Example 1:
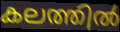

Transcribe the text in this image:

കലത്തിൽ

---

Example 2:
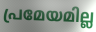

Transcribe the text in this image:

പ്രമേയമില്ല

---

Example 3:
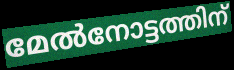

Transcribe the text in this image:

മേൽനോട്ടത്തിന്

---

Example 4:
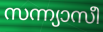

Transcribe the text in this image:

സന്ന്യാസീ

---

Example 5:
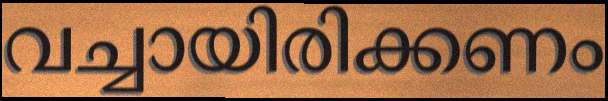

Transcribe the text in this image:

വച്ചായിരിക്കണം